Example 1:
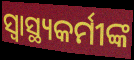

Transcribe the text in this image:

ସ୍ବାସ୍ଥ୍ୟକର୍ମୀଙ୍କ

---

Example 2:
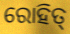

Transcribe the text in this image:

ରୋହିତ୍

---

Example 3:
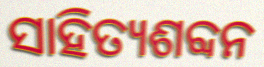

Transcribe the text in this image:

ସାହିତ୍ୟଶବ୍ଦନ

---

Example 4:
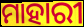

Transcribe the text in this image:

ମାହାରୀ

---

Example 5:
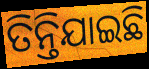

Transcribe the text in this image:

ତିନ୍ତିଯାଇଛି